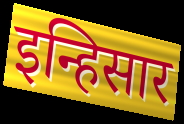
इन्हिसार